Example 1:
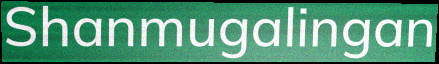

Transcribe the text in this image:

Shanmugalingan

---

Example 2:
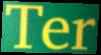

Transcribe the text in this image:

Ter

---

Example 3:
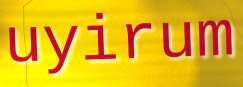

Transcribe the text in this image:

uyirum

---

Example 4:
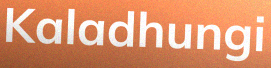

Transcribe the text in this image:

Kaladhungi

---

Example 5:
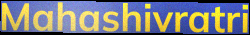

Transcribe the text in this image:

Mahashivratri